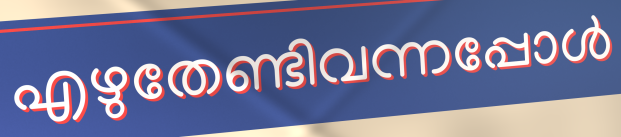
എഴുതേണ്ടിവന്നപ്പോൾ